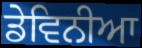
ਡੇਵਿਨੀਆ